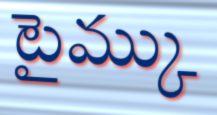
టైమ్కు